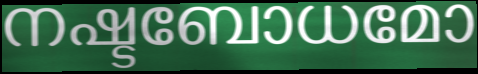
നഷ്ടബോധമോ